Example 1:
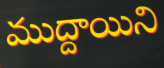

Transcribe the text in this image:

ముద్దాయిని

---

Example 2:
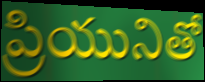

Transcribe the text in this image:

ప్రియునితో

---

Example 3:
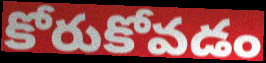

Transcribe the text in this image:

కోరుకోవడం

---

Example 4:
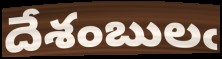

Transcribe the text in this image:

దేశంబులఁ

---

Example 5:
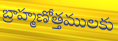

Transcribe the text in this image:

బ్రాహ్మణోత్తములకు